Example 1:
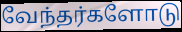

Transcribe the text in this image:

வேந்தர்களோடு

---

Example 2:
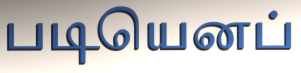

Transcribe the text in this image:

படியெனப்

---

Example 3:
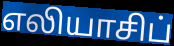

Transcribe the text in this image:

எலியாசிப்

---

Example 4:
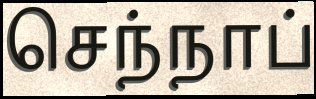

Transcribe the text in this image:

செந்நாப்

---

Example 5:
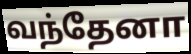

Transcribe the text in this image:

வந்தேனா